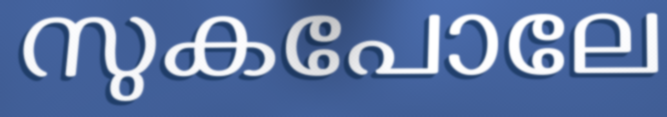
സുകപോലേ